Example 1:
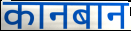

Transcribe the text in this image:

कानबान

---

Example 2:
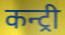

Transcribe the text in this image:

कन्ट्री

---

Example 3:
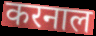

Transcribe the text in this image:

करनाल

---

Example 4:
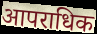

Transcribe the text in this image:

आपराधिक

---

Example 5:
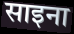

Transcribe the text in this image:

साइना